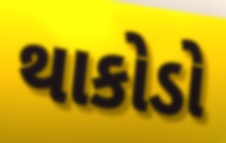
થાકોડો